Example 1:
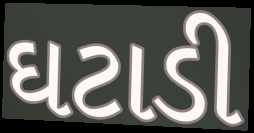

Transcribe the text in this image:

ઘટાડી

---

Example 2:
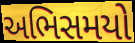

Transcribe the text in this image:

અભિસમયો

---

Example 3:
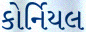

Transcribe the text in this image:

કોર્નિયલ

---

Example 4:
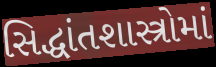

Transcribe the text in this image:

સિદ્ધાંતશાસ્ત્રોમાં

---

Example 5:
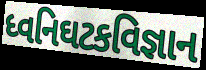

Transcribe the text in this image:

ધ્વનિઘટકવિજ્ઞાન